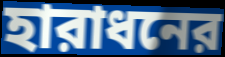
হারাধনের